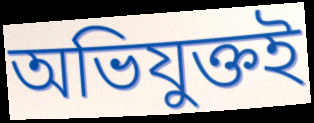
অভিযুক্তই